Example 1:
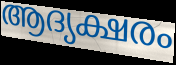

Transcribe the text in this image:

ആദ്യക്ഷരം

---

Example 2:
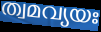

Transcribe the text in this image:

ത്വമവ്യയഃ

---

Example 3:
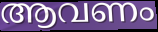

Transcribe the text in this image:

ആവണം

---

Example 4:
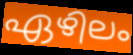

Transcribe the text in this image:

ഏഴിലം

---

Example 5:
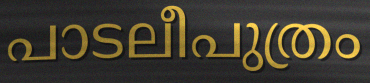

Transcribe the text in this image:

പാടലീപുത്രം